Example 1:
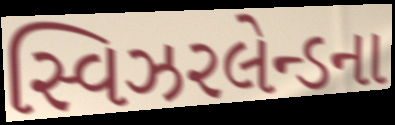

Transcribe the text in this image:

સ્વિઝરલેન્ડના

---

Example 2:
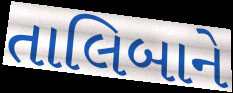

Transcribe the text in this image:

તાલિબાને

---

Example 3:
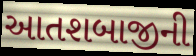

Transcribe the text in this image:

આતશબાજીની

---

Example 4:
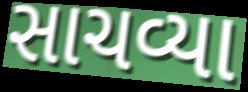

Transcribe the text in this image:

સાચવ્યા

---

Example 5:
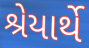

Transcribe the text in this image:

શ્રેયાર્થે